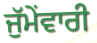
ਜੁੱਮੇਂਵਾਰੀ